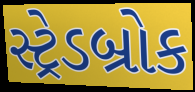
સ્ટ્રેડબ્રોક